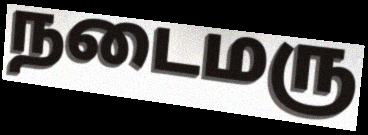
நடைமரு